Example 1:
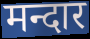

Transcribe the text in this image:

मन्दार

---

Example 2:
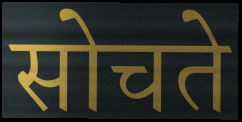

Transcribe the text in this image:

सोचते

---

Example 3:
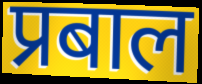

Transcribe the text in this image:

प्रबाल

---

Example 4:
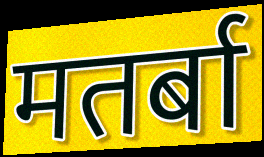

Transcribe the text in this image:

मतर्बा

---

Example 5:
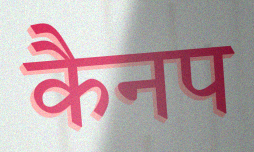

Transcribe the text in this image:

कैनप